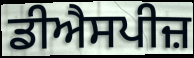
ਡੀਐਸਪੀਜ਼